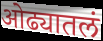
ओढ्यातलं